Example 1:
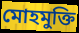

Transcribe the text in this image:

মোহমুক্তি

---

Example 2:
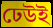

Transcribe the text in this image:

ঢেউই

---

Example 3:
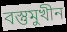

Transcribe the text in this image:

বস্তুমুখীন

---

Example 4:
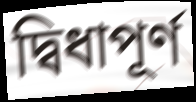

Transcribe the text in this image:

দ্বিধাপূর্ণ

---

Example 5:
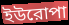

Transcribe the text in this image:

ইউরোপা